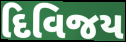
દિવિજય